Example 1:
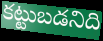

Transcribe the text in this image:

కట్టుబడనిది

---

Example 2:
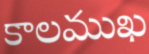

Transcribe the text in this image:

కాలముఖ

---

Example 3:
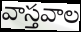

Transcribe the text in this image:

వాస్తవాల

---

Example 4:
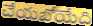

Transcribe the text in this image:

చేయబోయేది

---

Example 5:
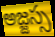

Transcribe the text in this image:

అజ్జస్స